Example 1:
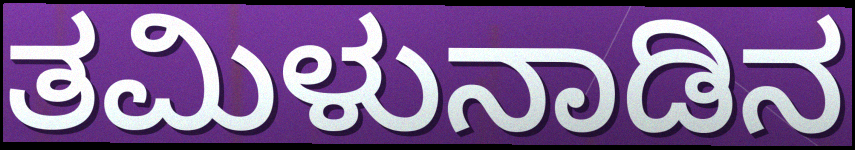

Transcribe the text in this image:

ತಮಿಳುನಾಡಿನ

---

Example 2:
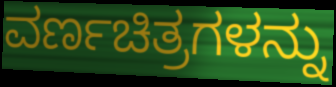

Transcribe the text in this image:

ವರ್ಣಚಿತ್ರಗಳನ್ನು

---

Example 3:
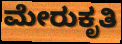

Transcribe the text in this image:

ಮೇರುಕೃತಿ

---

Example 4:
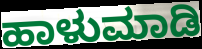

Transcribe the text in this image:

ಹಾಳುಮಾಡಿ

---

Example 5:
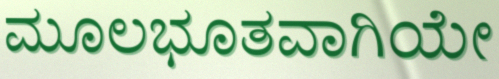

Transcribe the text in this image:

ಮೂಲಭೂತವಾಗಿಯೇ